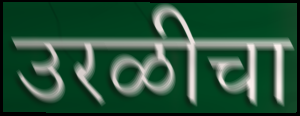
उरळीचा